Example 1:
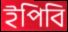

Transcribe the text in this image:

ইপিবি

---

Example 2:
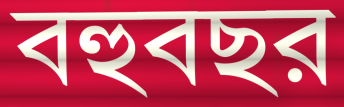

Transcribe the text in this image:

বহুবছর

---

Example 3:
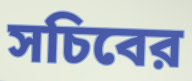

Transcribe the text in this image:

সচিবের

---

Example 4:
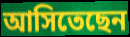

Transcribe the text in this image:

আসিতেছেন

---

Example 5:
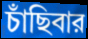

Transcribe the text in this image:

চাঁছিবার